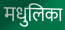
मधुलिका